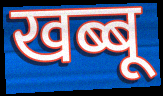
खब्‍बू